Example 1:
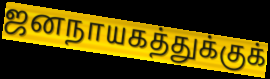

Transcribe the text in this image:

ஜனநாயகத்துக்குக்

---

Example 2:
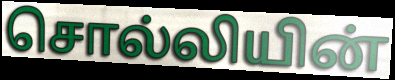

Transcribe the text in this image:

சொல்லியின்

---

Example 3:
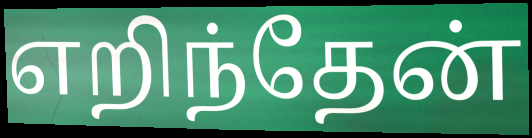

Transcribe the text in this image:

எறிந்தேன்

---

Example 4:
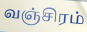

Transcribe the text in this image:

வஞ்சிரம்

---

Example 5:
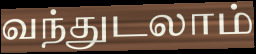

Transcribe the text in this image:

வந்துடலாம்